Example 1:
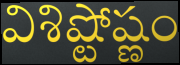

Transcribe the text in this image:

విశిష్టోష్ణం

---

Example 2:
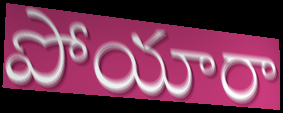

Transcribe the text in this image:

పోయారా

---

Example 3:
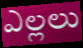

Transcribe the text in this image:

ఎల్లలు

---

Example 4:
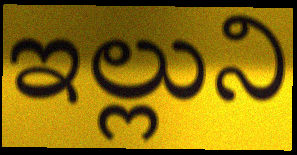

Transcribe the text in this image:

ఇల్లుని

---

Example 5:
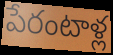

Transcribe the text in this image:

పేరంటాళ్ల